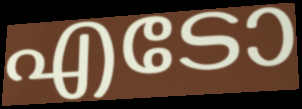
എടോ